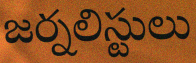
జర్నలిస్టులు